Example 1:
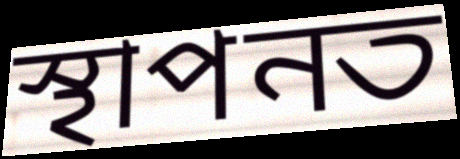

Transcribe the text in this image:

স্থাপনত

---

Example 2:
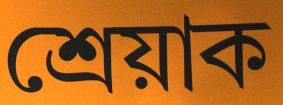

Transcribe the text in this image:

শ্ৰেয়াক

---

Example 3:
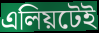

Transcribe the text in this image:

এলিয়টেই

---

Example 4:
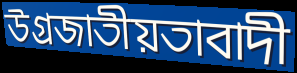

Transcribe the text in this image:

উগ্ৰজাতীয়তাবাদী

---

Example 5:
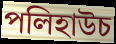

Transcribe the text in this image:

পলিহাউচ